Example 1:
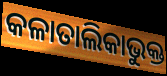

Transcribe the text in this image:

କଳାତାଲିକାଭୁକ୍ତ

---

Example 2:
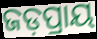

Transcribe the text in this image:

ଜଡ଼ପ୍ରାୟ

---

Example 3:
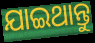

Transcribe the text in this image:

ଯାଇଥାନ୍ତୁ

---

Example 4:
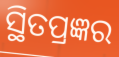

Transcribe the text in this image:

ସ୍ଥିତପ୍ରଜ୍ଞର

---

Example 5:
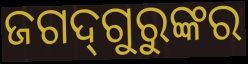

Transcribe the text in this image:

ଜଗଦ୍‌ଗୁରୁଙ୍କର